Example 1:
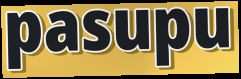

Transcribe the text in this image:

pasupu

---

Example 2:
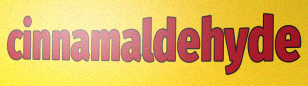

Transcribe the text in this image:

cinnamaldehyde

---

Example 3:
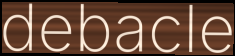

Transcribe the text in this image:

debacle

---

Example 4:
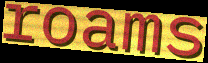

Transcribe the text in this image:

roams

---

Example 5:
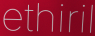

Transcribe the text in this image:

ethiril